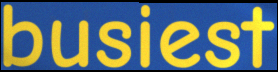
busiest